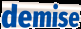
demise